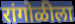
रांगोळीला